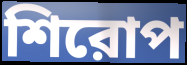
শিরোপ